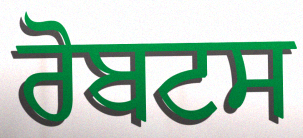
ਰੋਬਟਸ